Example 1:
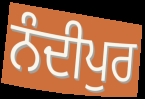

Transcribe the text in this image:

ਨੰਦੀਪੁਰ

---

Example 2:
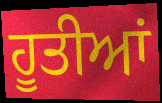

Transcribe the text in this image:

ਹੂਤੀਆਂ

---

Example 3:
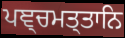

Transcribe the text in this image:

ਪਞ੍ਚਮਤ੍ਤਾਨਿ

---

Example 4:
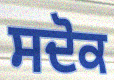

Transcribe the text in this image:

ਸਦੋਕ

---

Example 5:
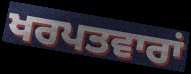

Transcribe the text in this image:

ਖਰਪਤਵਾਰਾਂ